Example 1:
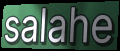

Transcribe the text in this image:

salahe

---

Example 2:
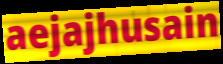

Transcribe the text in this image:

aejajhusain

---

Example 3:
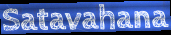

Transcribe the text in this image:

Satavahana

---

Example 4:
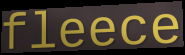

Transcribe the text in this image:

fleece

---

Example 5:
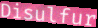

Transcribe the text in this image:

Disulfur